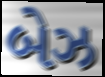
બેઝ